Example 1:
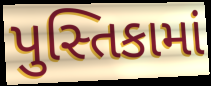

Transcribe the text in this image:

પુસ્તિકામાં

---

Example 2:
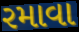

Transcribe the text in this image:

રમાવા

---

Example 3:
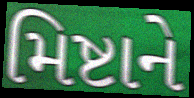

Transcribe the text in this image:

મિષ્ટાને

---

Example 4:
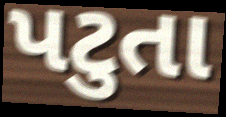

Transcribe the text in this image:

પટુતા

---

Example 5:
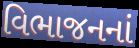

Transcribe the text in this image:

વિભાજનનાં